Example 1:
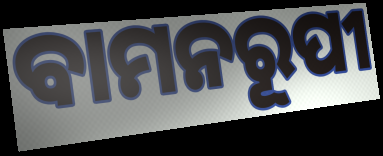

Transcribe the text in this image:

ବାମନରୂପୀ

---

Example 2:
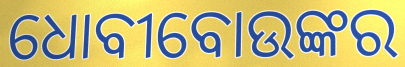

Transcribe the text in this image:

ଧୋବୀବୋଉଙ୍କର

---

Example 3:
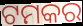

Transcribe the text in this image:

ଟମକର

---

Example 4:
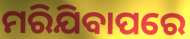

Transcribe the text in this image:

ମରିଯିବାପରେ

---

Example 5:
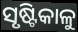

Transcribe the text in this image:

ସୃଷ୍ଟିକାଳୁ